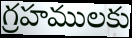
గ్రహములకు